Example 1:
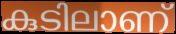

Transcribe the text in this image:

കുടിലാണ്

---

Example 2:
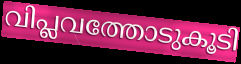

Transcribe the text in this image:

വിപ്ലവത്തോടുകൂടി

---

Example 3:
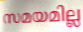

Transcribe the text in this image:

സമയമില്ല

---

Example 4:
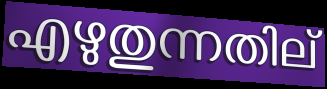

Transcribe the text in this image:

എഴുതുന്നതില്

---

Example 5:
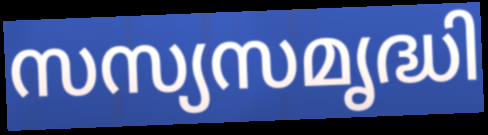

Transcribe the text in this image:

സസ്യസമൃദ്ധി